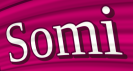
Somi